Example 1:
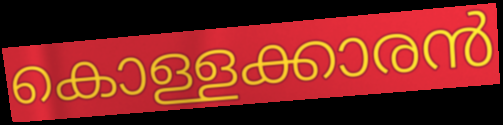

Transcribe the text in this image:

കൊള്ളക്കാരൻ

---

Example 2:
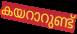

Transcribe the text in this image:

കയറാറുണ്ട്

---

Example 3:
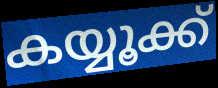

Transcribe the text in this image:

കയ്യൂക്ക്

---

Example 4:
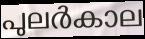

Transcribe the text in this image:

പുലർകാല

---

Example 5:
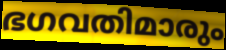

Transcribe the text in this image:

ഭഗവതിമാരും